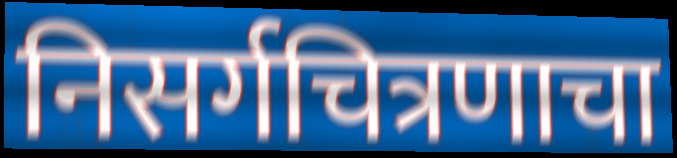
निसर्गचित्रणाचा